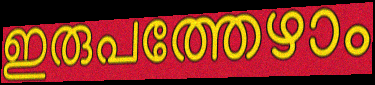
ഇരുപത്തേഴാം